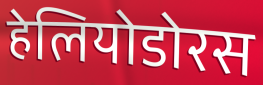
हेलियोडोरस